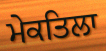
ਮੇਕਤਿਲਾ